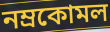
নম্রকোমল